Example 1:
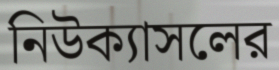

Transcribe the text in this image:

নিউক্যাসলের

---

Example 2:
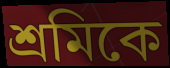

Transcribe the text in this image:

শ্রমিকে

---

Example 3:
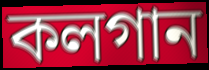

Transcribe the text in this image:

কলগান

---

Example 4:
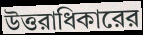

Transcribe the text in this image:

উত্তরাধিকারের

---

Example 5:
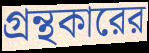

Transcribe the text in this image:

গ্রন্থকারের